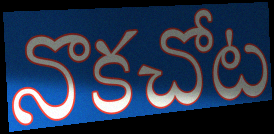
నొకచోట